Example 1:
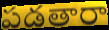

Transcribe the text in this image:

పడతారా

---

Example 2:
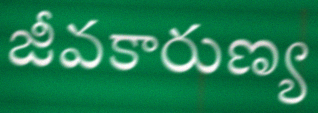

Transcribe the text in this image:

జీవకారుణ్య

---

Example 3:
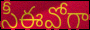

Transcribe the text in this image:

సీఈవోగా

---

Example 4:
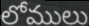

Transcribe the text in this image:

లోములు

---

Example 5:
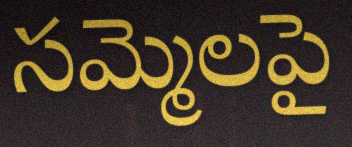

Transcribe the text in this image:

సమ్మెలపై